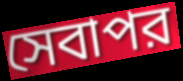
সেবাপর